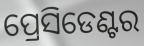
ପ୍ରେସିଡେଣ୍ଟର